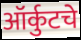
ऑर्कुटचे